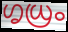
ഗൃധ്രം